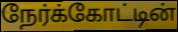
நேர்க்கோட்டின்